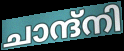
ചാന്ദ്നി